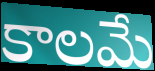
కాలమే